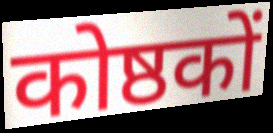
कोष्ठकों